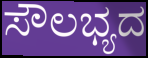
ಸೌಲಭ್ಯದ